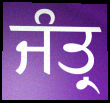
ਜੰਤ੍ਰ